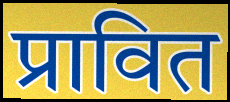
प्रावित